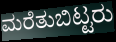
ಮರೆತುಬಿಟ್ಟರು